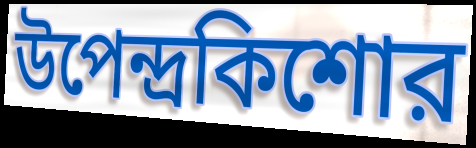
উপেন্দ্রকিশোর